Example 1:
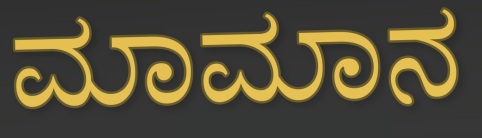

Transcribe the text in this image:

ಮಾಮಾನ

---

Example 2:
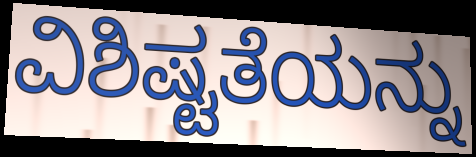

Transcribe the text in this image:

ವಿಶಿಷ್ಟತೆಯನ್ನು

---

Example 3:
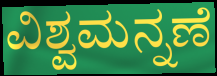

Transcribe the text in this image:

ವಿಶ್ವಮನ್ನಣೆ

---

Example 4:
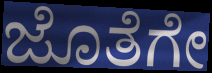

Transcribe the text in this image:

ಜೊತೆಗೇ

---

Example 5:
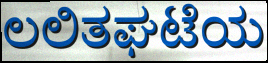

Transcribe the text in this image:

ಲಲಿತಘಟೆಯ